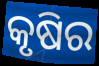
କୃଷିର